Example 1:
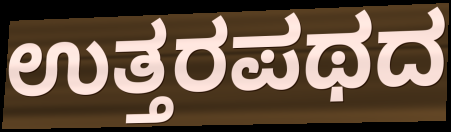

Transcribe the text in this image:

ಉತ್ತರಪಥದ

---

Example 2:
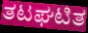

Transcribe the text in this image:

ತಟಘಟಿತ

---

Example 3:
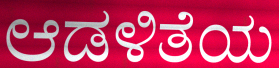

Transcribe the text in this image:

ಆಡಳಿತೆಯ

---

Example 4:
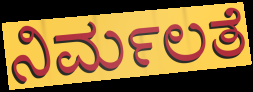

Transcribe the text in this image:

ನಿರ್ಮಲತೆ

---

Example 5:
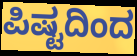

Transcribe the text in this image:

ಪಿಷ್ಟದಿಂದ